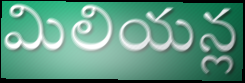
మిలియన్ల